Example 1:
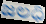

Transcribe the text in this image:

జలధి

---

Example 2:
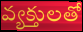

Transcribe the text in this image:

వ్యక్తులతో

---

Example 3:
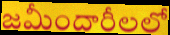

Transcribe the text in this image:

జమీందారీలలో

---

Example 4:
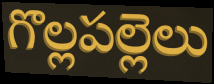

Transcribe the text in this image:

గొల్లపల్లెలు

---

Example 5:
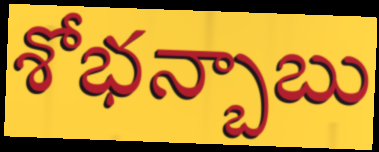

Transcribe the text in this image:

శోభన్బాబు